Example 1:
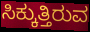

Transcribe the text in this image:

ಸಿಕ್ಕುತ್ತಿರುವ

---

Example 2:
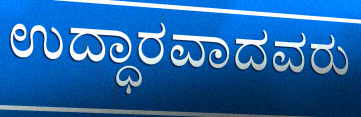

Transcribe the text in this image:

ಉದ್ಧಾರವಾದವರು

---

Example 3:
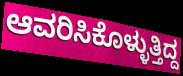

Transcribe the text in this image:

ಆವರಿಸಿಕೊಳ್ಳುತ್ತಿದ್ದ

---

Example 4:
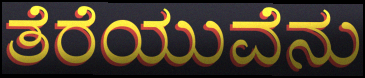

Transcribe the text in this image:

ತೆರೆಯುವೆನು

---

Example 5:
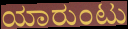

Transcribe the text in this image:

ಯಾರುಂಟು